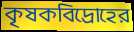
কৃষকবিদ্রোহের